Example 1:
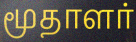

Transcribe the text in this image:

மூதாளர்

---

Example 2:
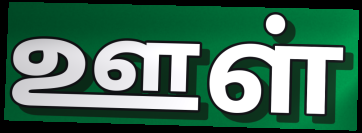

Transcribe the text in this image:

ஊள்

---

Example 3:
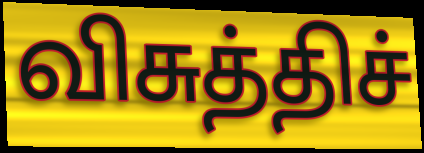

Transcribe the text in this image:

விசுத்திச்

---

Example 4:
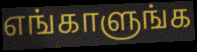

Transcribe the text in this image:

எங்காளுங்க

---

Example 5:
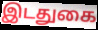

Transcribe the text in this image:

இடதுகை